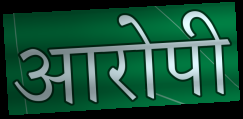
आरोपी